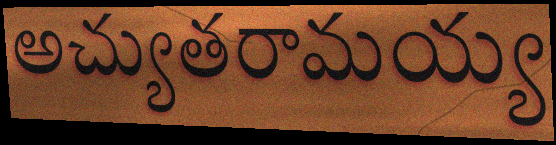
అచ్యుతరామయ్య